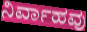
ನಿರ್ವಾಹವು